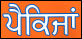
ਪੈਕਿਜਾਂ